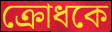
ক্রোধকে